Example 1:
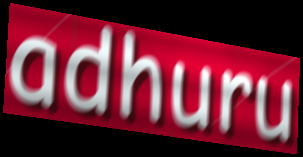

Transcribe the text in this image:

adhuru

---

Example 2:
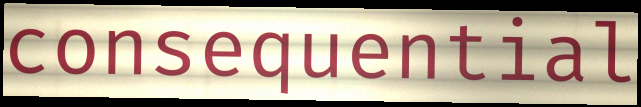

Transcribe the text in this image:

consequential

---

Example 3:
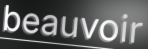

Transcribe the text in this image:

beauvoir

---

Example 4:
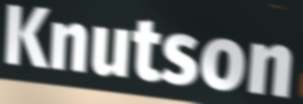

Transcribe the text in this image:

Knutson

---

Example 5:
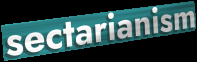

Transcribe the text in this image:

sectarianism